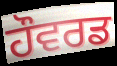
ਹੌਵਰਡ